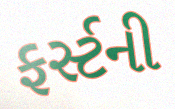
ફર્સ્ટની